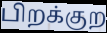
பிறக்குற